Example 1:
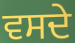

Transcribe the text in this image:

ਵਸਦੇ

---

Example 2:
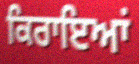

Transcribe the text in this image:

ਕਿਰਾਇਆਂ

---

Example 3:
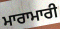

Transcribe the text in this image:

ਮਾਰਾਮਾਰੀ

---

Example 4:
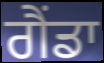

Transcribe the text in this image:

ਗੈਂਡਾ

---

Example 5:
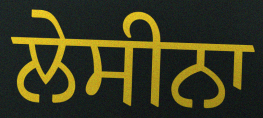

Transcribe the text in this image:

ਲੇਸੀਨਾ